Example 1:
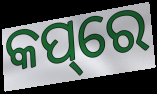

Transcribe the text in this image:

କପ୍‌ରେ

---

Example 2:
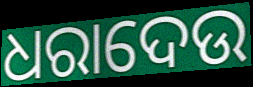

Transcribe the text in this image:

ଧରାଦେଉ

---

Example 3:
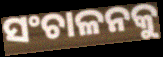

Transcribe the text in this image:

ସଂଚାଳନକୁ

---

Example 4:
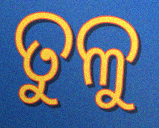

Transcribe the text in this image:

ତୁଳୁ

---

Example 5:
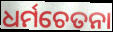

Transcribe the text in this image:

ଧର୍ମଚେତନା